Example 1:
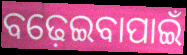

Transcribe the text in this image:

ବଢ଼େଇବାପାଇଁ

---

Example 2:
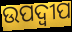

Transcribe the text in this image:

ଉପଦ୍ବୀପ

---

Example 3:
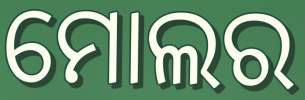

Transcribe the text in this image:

ମୋଲର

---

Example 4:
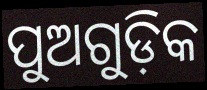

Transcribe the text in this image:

ପୁଅଗୁଡ଼ିକ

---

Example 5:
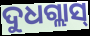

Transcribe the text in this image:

ଦୁଧଗ୍ଲାସ୍